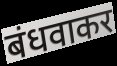
बंधवाकर